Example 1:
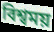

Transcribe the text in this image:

বিশ্বময়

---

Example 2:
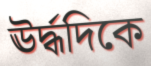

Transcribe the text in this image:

ঊর্দ্ধদিকে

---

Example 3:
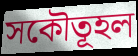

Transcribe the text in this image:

সকৌতূহল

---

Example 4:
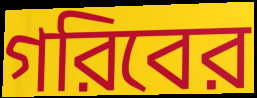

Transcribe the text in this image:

গরিবের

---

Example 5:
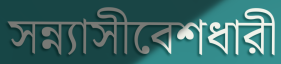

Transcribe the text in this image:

সন্ন্যাসীবেশধারী